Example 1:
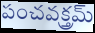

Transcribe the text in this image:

పంచవక్త్రమ్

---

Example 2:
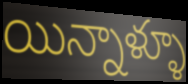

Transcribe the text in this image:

యిన్నాళ్ళూ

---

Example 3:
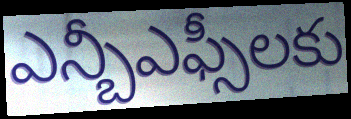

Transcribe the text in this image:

ఎన్బీఎఫ్సీలకు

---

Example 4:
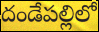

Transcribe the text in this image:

దండేపల్లిలో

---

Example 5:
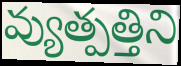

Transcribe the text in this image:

వ్యుత్పత్తిని